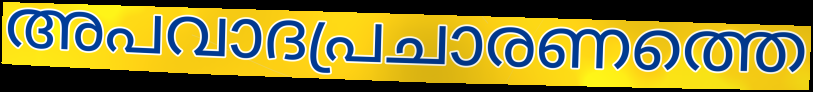
അപവാദപ്രചാരണത്തെ